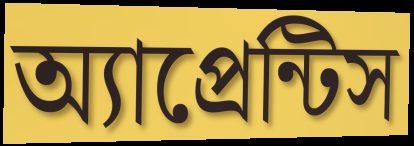
অ্যাপ্রেন্টিস